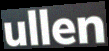
ullen